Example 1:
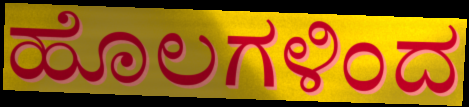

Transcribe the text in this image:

ಹೊಲಗಳಿಂದ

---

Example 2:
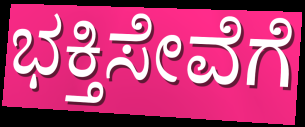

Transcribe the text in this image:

ಭಕ್ತಿಸೇವೆಗೆ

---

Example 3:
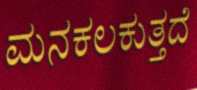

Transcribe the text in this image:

ಮನಕಲಕುತ್ತದೆ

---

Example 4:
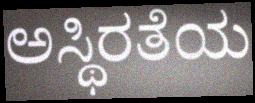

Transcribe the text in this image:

ಅಸ್ಥಿರತೆಯ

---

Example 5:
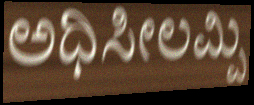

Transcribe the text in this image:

ಅಧಿಸೀಲಮ್ಪಿ